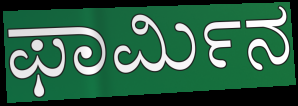
ಫಾರ್ಮಿನ